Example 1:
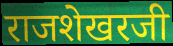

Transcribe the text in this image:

राजशेखरजी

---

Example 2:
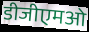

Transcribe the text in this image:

डीजीएमओ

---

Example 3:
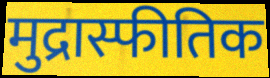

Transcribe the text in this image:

मुद्रास्फीतिक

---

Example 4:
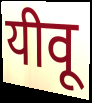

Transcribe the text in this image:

यीवू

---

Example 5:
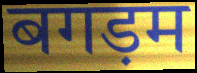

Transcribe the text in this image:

बगड़म